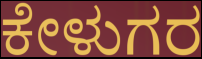
ಕೇಳುಗರ